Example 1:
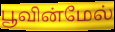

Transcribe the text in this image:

பூவின்மேல்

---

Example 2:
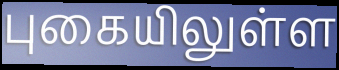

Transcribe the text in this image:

புகையிலுள்ள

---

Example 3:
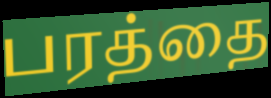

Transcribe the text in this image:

பரத்தை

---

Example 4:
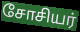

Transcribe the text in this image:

சோசியர்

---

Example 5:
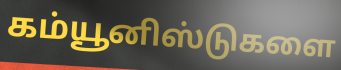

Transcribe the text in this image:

கம்யூனிஸ்டுகளை